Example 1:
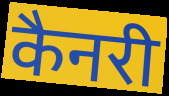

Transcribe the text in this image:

कैनरी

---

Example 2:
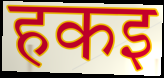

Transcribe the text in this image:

हकइ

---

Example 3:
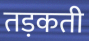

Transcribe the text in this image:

तड़कती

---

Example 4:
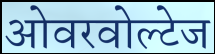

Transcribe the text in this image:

ओवरवोल्टेज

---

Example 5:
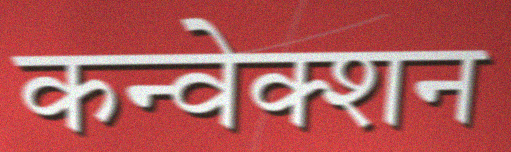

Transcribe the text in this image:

कन्वेक्शन